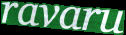
ravaru